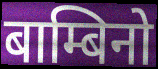
बाम्बिनो